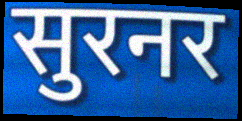
सुरनर